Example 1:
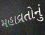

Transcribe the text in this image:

મહાવ્રતોનું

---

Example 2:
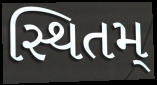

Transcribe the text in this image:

સ્થિતમ્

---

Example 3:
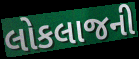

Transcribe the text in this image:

લોકલાજની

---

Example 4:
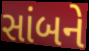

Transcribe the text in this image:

સાંબને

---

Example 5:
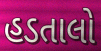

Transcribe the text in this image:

હડતાલો